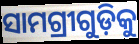
ସାମଗ୍ରୀଗୁଡ଼ିକୁ